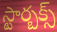
స్టార్బక్స్